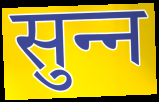
सुन्‍न